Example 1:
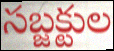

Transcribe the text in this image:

సబ్జక్టుల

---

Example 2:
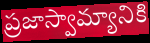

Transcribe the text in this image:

ప్రజాస్వామ్యానికి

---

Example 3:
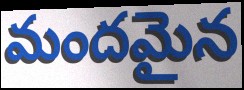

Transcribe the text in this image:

మందమైన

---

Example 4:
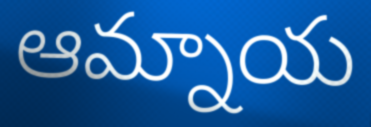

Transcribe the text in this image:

ఆమ్నాయ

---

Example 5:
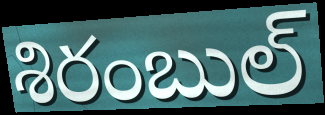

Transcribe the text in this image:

శిరంబుల్